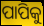
ପାପିକୁ